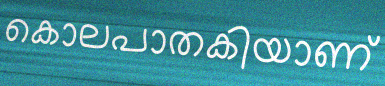
കൊലപാതകിയാണ്